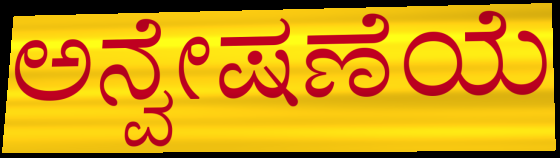
ಅನ್ವೇಷಣೆಯೆ